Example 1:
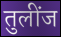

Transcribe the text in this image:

तुलींज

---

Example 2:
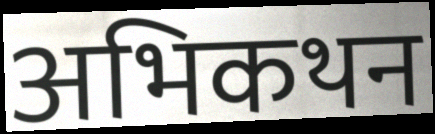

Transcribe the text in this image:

अभिकथन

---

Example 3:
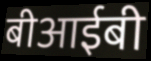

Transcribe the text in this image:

बीआईबी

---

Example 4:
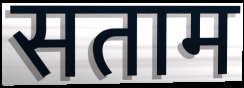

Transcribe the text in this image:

सताम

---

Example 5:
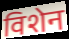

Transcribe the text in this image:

विशेन